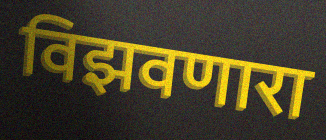
विझवणारा